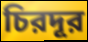
চিরদূর